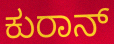
ಕುರಾನ್